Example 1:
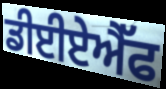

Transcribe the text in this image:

ਡੀਈਏਐੱਫ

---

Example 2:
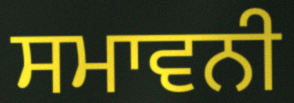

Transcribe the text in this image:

ਸਮਾਵਨੀ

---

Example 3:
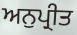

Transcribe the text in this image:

ਅਨੁਪ੍ਰੀਤ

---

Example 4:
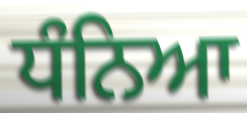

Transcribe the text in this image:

ਧੰਨਿਆ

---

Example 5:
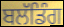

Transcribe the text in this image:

ਬਲੱਡਿੰਗ